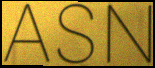
ASN